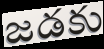
జడకు